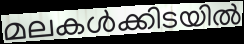
മലകൾക്കിടയിൽ